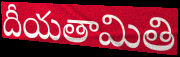
దీయతామితి